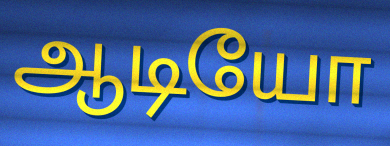
ஆடியோ